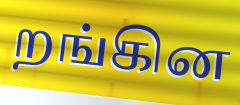
றங்கின